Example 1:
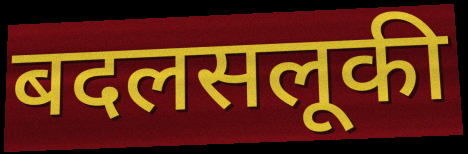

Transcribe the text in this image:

बदलसलूकी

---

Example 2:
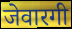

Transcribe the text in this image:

जेवारगी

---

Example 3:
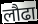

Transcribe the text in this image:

लौढा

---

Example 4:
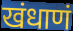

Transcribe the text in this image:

खंधाणं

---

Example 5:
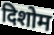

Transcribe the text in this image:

दिशोम